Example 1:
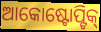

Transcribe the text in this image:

ଆକୋଷ୍ଟୋପ୍ଟିକ୍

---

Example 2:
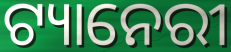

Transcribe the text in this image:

ଟ୍ୟାନେରୀ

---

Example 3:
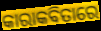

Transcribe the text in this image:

କାରାକବିତାରେ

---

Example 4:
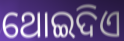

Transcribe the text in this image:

ଥୋଇଦିଏ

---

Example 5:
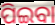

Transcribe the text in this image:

ପିଇବା